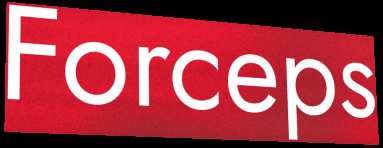
Forceps